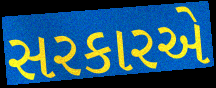
સરકારએ